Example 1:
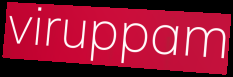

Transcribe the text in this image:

viruppam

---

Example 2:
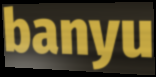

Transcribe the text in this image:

banyu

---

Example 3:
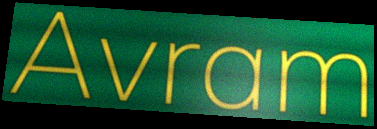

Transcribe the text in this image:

Avram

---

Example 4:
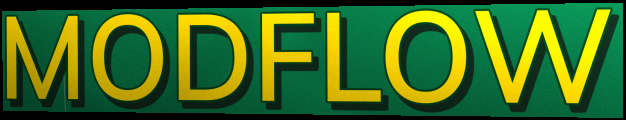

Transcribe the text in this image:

MODFLOW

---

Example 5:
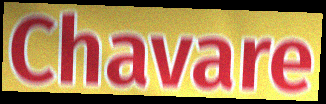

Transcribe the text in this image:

Chavare